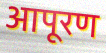
आपूरण